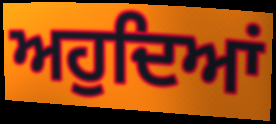
ਅਹੁਦਿਆਂ